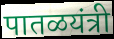
पातळयंत्री